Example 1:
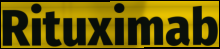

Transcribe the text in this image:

Rituximab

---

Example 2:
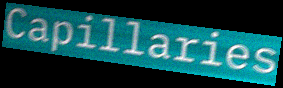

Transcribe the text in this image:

Capillaries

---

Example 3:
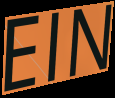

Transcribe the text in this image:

EIN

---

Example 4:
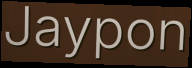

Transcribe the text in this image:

Jaypon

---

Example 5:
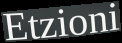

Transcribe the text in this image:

Etzioni